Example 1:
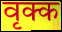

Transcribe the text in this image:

वृक्क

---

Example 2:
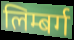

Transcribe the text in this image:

लिम्बर्ग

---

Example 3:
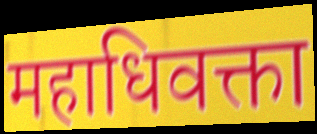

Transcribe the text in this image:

महाधिवक्ता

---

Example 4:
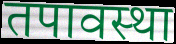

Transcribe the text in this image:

तपावस्था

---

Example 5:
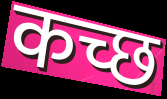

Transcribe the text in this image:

कच्छ